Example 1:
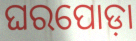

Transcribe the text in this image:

ଘରପୋଡ଼ା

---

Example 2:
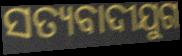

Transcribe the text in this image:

ସତ୍ୟବାଦୀଯୁଗ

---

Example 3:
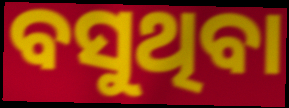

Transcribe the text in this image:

ବସୁଥିବା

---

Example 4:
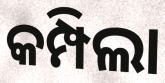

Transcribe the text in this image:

କମ୍ପିଲା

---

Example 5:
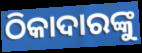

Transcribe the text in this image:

ଠିକାଦାରଙ୍କୁ